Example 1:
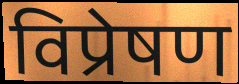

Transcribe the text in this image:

विप्रेषण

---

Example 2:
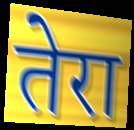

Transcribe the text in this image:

तेरा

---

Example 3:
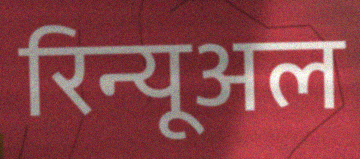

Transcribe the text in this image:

रिन्यूअल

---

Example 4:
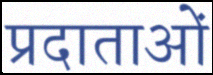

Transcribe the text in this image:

प्रदाताओं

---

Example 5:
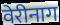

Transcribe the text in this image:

वेरीनाग